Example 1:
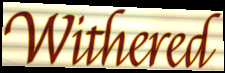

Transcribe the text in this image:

Withered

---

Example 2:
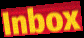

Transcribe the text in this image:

Inbox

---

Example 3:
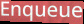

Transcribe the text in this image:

Enqueue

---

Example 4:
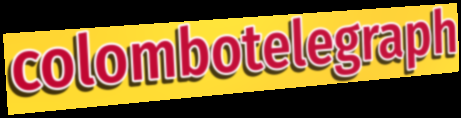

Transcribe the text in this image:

colombotelegraph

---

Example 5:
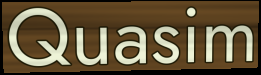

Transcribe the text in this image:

Quasim